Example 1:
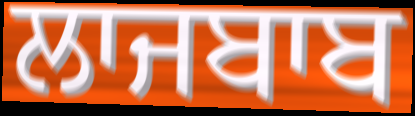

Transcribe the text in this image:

ਲਾਜਬਾਬ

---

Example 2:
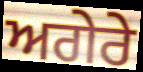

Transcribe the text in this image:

ਅਗੇਰੇ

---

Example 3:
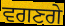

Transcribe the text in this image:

ਵਗਣਗੇ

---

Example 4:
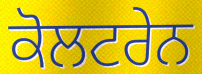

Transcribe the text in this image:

ਕੋਲਟਰੇਨ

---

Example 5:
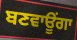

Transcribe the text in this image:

ਬਣਵਾਊਂਗਾ